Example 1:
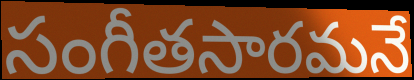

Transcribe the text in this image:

సంగీతసారమనే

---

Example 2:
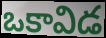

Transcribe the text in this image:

ఒకావిడ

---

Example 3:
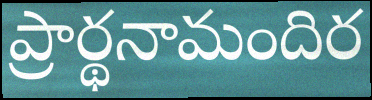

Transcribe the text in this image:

ప్రార్థనామందిర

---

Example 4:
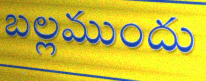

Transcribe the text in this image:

బల్లముందు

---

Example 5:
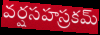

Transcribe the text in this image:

వర్షసహస్రకమ్